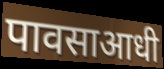
पावसाआधी